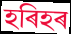
হৰিহৰ